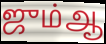
ஜும்ஆ